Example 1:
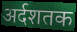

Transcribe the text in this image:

अर्दशतक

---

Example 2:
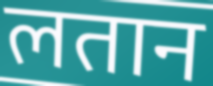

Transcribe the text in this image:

लतान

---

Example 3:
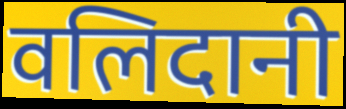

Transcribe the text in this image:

वलिदानी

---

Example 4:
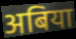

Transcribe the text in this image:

अबिया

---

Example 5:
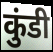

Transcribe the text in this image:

कुंडी